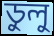
ডুলু